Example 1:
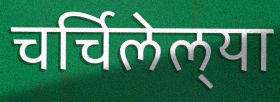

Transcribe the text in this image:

चर्चिलेल्या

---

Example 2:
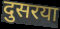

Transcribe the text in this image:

दुसरया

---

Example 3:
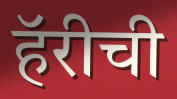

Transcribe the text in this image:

हॅरीची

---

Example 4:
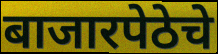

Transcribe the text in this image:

बाजारपेठेचे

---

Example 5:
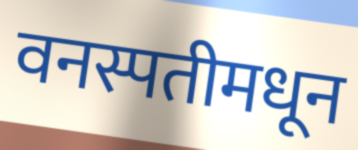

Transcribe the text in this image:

वनस्पतीमधून